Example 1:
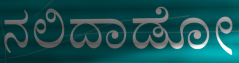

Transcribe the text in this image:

ನಲಿದಾಡೋ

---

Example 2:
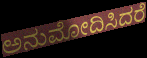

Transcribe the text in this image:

ಅನುಮೋದಿಸಿದರೆ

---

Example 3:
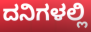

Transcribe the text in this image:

ದನಿಗಳಲ್ಲಿ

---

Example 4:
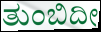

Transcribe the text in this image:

ತುಂಬಿದೀ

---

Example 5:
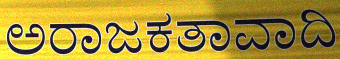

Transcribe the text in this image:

ಅರಾಜಕತಾವಾದಿ